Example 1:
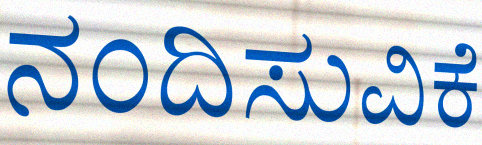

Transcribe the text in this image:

ನಂದಿಸುವಿಕೆ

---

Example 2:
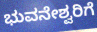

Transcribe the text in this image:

ಭುವನೇಶ್ವರಿಗೆ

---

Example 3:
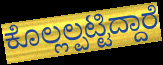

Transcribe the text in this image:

ಕೊಲ್ಲಲ್ಪಟ್ಟಿದ್ದಾರೆ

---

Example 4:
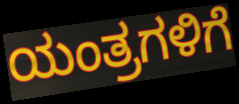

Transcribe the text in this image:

ಯಂತ್ರಗಳಿಗೆ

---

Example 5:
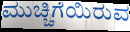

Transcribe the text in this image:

ಮುಚ್ಚಿಗೆಯಿರುವ